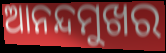
ଆନନ୍ଦମୁଖର